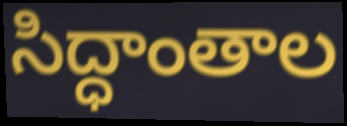
సిద్ధాంతాల